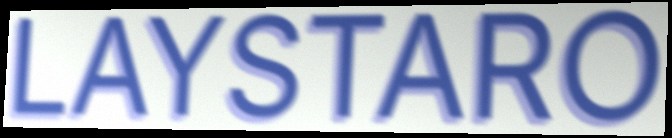
LAYSTARO